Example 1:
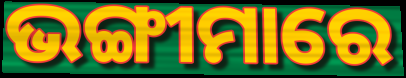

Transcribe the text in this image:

ଭଙ୍ଗୀମାରେ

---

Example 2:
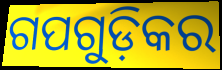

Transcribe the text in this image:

ଗପଗୁଡ଼ିକର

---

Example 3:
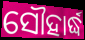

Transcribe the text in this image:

ସୌହାର୍ଦ୍ଧ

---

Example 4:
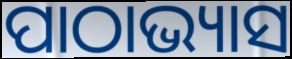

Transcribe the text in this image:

ପାଠାଭ୍ୟାସ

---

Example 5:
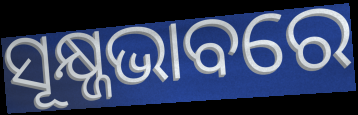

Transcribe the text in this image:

ସୂକ୍ଷ୍ଜଭାବରେ